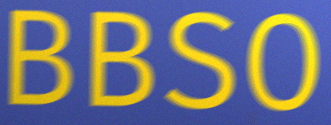
BBSO